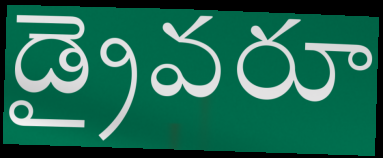
డ్రైవరూ